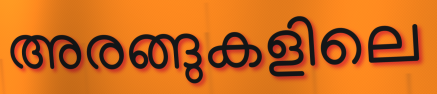
അരങ്ങുകളിലെ